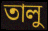
তালু